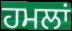
ਹਮਲਾਂ